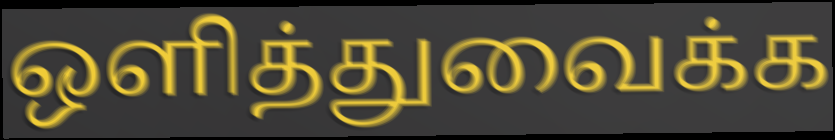
ஒளித்துவைக்க